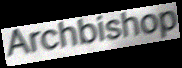
Archbishop